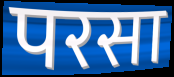
परसा